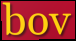
bov